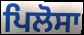
ਪਿਲੋਸਾ